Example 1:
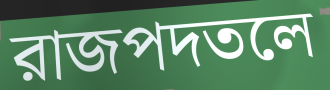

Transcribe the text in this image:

রাজপদতলে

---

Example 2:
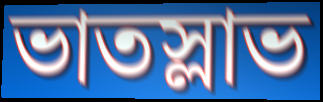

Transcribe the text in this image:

ভাতস্লাভ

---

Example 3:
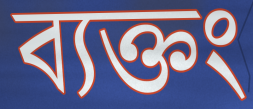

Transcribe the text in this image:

ব্যক্তং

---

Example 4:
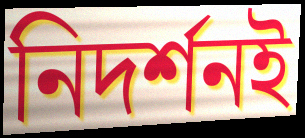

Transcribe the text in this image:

নিদর্শনই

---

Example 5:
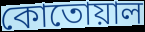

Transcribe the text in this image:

কোতোয়াল